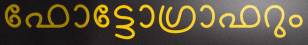
ഫോട്ടോഗ്രാഫറും